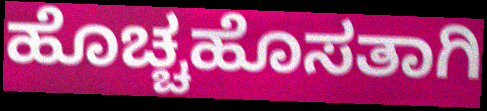
ಹೊಚ್ಚಹೊಸತಾಗಿ